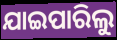
ଯାଇପାରିଲୁ